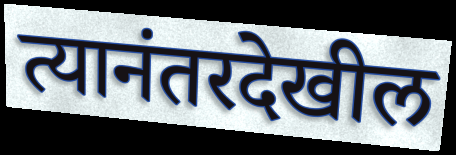
त्यानंतरदेखील